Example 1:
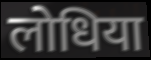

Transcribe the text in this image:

लोधिया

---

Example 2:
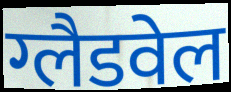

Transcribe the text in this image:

ग्लैडवेल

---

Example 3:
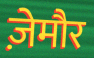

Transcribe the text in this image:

ज़ेमौर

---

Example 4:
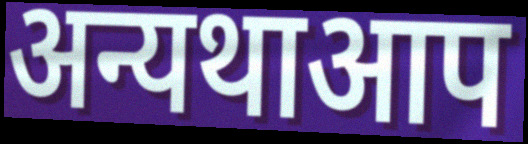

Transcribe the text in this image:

अन्यथाआप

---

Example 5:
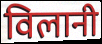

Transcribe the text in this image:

विलानी